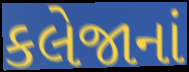
કલેજાનાં